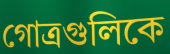
গোত্রগুলিকে